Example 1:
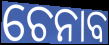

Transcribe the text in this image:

ଚେନାବ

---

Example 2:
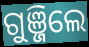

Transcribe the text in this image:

ଗୁଞ୍ଜିଲେ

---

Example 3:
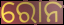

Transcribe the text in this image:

ରୋନ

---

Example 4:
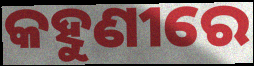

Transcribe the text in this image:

କହୁଣୀରେ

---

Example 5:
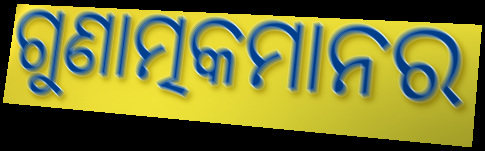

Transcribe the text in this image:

ଗୁଣାତ୍ମକମାନର